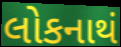
લોકનાથં